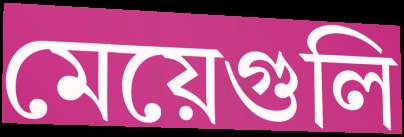
মেয়েগুলি